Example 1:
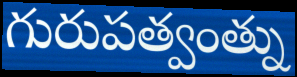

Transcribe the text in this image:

గురుపత్వంత్ను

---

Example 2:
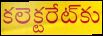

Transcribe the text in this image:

కలెక్టరేట్‌కు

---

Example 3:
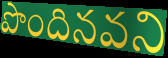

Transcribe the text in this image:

పొందినవని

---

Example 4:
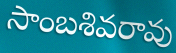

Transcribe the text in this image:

సాంబశివరావు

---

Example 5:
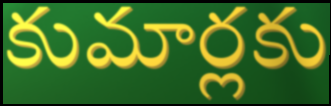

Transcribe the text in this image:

కుమార్లకు